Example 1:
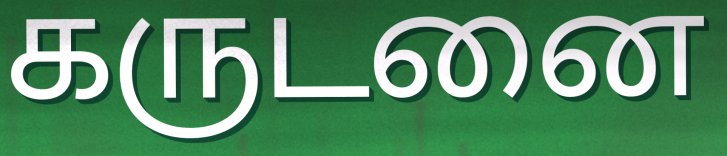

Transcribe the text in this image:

கருடனை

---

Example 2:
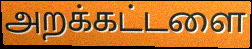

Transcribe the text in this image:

அறக்கட்டளை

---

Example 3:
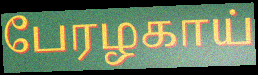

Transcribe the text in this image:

பேரழகாய்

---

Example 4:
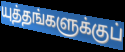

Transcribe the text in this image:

யுத்தங்களுக்குப்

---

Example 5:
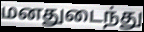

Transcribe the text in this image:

மனதுடைந்து